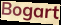
Bogart